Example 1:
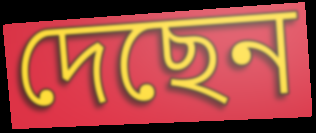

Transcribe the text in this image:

দেছেন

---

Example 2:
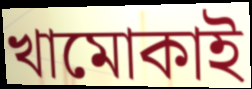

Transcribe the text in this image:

খামোকাই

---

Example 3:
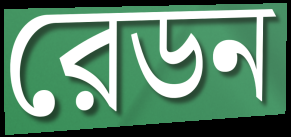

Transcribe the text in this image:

রেডন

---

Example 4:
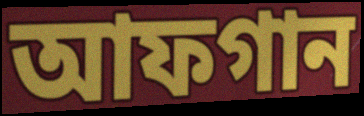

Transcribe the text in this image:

আফগান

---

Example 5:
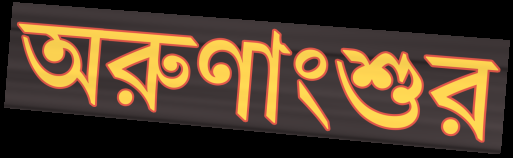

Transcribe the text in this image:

অরুণাংশুর